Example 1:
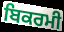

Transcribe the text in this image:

ਬਿਕਰਮੀ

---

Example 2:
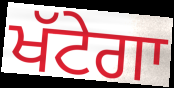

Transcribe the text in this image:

ਖੱਟੇਗਾ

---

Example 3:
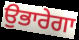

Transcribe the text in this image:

ਉਭਾਰੇਗਾ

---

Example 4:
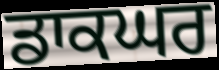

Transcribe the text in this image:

ਡਾਕਘਰ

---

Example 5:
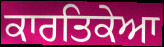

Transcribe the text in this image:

ਕਾਰਤਿਕੇਆ